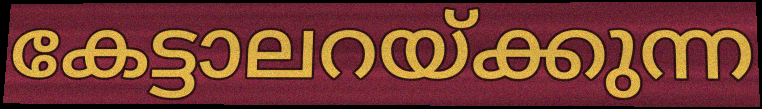
കേട്ടാലറയ്ക്കുന്ന